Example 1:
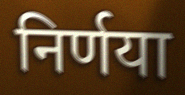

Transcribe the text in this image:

निर्णया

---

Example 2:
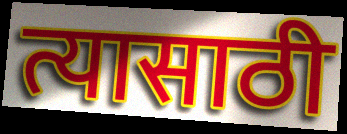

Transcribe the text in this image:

त्यासाठी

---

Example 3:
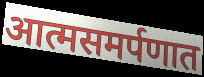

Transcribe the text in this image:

आत्मसमर्पणात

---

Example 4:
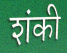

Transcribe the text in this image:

शंकी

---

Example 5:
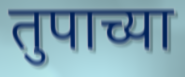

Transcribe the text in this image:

तुपाच्या